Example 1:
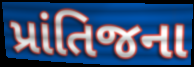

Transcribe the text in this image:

પ્રાંતિજના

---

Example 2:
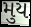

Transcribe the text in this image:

મુય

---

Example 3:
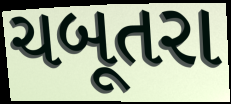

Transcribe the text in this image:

ચબૂતરા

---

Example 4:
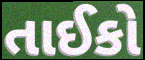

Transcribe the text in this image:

તાઈકો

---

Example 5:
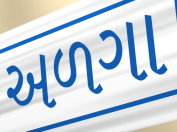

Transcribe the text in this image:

અળગા